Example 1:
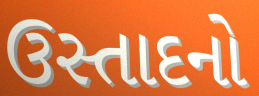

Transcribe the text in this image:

ઉસ્તાદનો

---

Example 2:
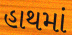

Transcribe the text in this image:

હાથમાં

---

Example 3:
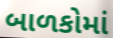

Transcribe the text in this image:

બાળકોમાં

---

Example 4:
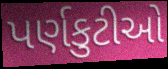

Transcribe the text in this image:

પર્ણકુટીઓ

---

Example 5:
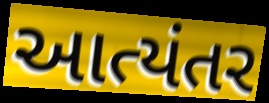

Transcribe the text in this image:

આત્યંતર